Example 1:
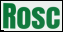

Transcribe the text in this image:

Rosc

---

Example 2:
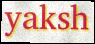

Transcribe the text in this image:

yaksh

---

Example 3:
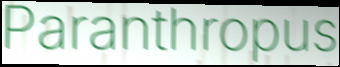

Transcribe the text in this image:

Paranthropus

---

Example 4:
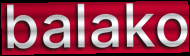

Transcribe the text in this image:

balako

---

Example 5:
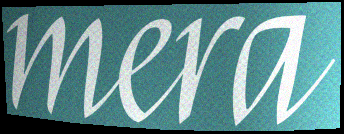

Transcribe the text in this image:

mera